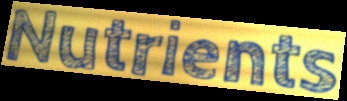
Nutrients